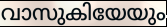
വാസുകിയേയും